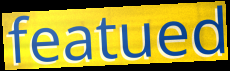
featued